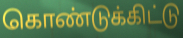
கொண்டுக்கிட்டு